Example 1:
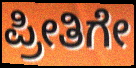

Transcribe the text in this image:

ಪ್ರೀತಿಗೇ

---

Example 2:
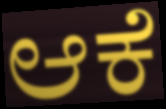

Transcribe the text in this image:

ಆಕೆ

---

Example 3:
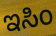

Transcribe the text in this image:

ಇಸಿಂ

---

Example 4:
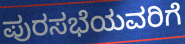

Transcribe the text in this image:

ಪುರಸಭೆಯವರಿಗೆ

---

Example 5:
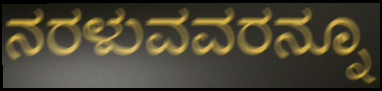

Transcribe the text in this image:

ನರಳುವವರನ್ನೂ